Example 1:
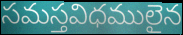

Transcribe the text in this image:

సమస్తవిధములైన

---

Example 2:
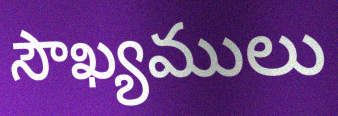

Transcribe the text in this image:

సౌఖ్యములు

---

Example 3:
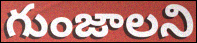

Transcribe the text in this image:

గుంజాలని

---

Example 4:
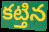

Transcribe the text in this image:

కట్తిన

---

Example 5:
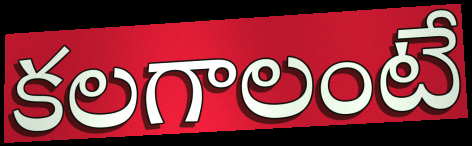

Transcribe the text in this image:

కలగాలంటే